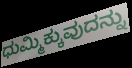
ಧುಮ್ಮಿಕ್ಕುವುದನ್ನು